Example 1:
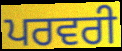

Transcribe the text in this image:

ਪਰਵਰੀ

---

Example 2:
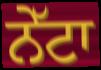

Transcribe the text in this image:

ਨੇੱਟਾ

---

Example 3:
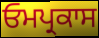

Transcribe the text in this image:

ਓਮਪ੍ਰਕਾਸ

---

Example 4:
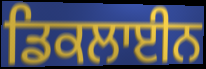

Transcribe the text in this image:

ਡਿਕਲਾਈਨ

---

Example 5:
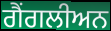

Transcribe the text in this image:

ਗੈਂਗਲੀਅਨ